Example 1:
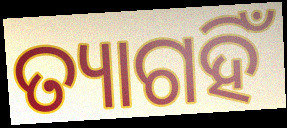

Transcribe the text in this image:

ତ୍ୟାଗହିଁ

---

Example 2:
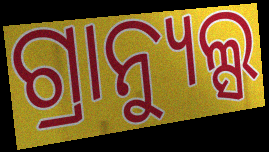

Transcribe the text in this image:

ଗ୍ରାନ୍ୟୁଲ୍ସ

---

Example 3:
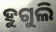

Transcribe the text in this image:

ହୁଗୁଲି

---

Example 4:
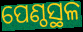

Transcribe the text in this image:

ପେଣ୍ଠସ୍ଥଳ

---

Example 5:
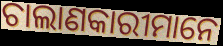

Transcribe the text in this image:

ଚାଲାଣକାରୀମାନେ